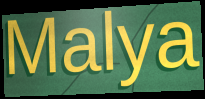
Malya